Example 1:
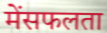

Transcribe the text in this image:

मेंसफलता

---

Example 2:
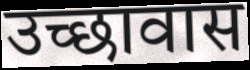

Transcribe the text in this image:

उच्छावास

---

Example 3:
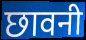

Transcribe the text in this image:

छावनी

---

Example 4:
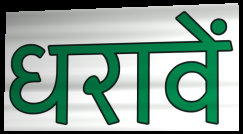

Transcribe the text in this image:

धरावें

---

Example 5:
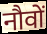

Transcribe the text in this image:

नौवों